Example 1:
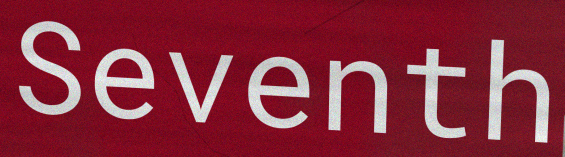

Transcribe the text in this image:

Seventh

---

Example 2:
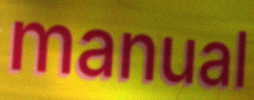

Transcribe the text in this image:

manual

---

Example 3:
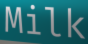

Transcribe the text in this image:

Milk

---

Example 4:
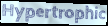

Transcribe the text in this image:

Hypertrophic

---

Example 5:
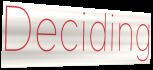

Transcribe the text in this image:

Deciding